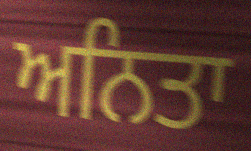
ਅਨਿਤਾ